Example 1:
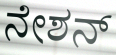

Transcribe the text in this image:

ನೇಶನ್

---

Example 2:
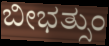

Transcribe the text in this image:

ಬೀಭತ್ಸುಂ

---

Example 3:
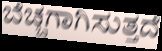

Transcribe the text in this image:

ಬೆಚ್ಚಗಾಗಿಸುತ್ತದೆ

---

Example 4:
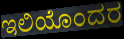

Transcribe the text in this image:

ಇಲಿಯೊಂದರ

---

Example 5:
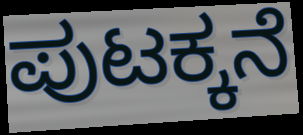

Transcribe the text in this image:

ಪುಟಕ್ಕನೆ